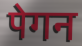
पेगन